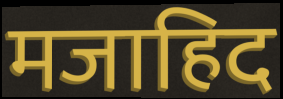
मजाहिद